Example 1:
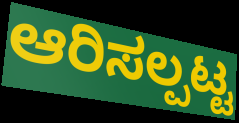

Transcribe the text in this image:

ಆರಿಸಲ್ಪಟ್ಟ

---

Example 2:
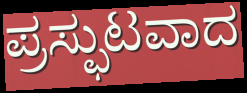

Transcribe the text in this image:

ಪ್ರಸ್ಫುಟವಾದ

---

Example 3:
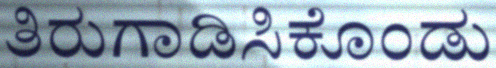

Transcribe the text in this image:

ತಿರುಗಾಡಿಸಿಕೊಂಡು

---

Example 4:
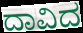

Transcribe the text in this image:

ದಾವಿದ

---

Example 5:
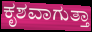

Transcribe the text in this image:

ಕೃಶವಾಗುತ್ತಾ